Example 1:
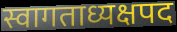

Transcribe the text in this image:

स्वागताध्यक्षपद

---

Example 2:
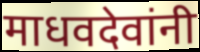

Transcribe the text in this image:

माधवदेवांनी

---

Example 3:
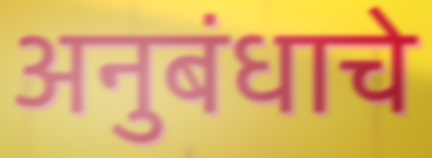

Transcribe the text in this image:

अनुबंधाचे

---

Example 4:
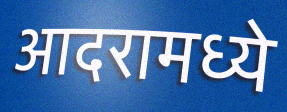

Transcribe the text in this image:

आदरामध्ये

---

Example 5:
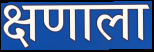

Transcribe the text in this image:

क्षणाला